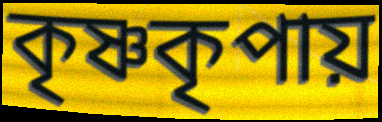
কৃষ্ণকৃপায়